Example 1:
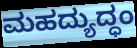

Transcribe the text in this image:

ಮಹದ್ಯುದ್ಧಂ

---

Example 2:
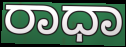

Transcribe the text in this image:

ರಾಧಾ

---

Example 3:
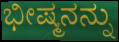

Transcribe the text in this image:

ಭೀಷ್ಮನನ್ನು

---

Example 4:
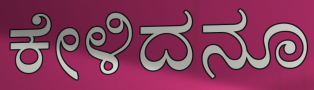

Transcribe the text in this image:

ಕೇಳಿದನೂ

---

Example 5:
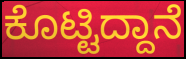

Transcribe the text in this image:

ಕೊಟ್ಟಿದ್ದಾನೆ